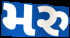
મરુ